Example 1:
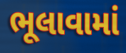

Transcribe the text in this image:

ભૂલાવામાં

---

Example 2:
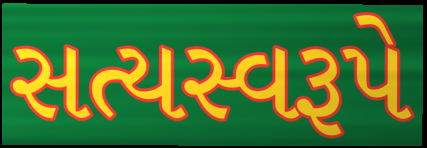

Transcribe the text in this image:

સત્યસ્વરૂપે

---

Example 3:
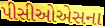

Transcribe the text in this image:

પીસીઓએસના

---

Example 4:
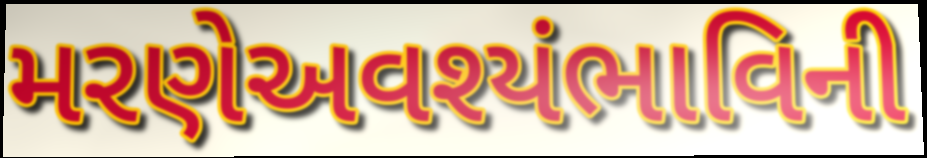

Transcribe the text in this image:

મરણેઅવશ્યંભાવિની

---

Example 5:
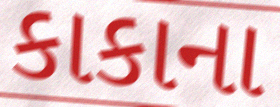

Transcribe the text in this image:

કાકાના